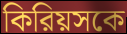
কিরিয়সকে